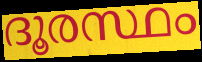
ദൂരസ്ഥം